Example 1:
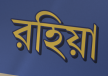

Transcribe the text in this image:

রহিয়া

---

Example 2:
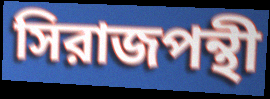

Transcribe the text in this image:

সিরাজপন্থী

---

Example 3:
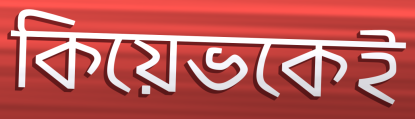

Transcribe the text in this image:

কিয়েভকেই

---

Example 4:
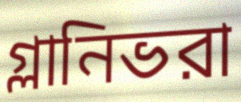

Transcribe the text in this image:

গ্লানিভরা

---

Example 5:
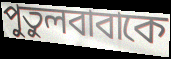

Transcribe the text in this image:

পুতুলবাবাকে